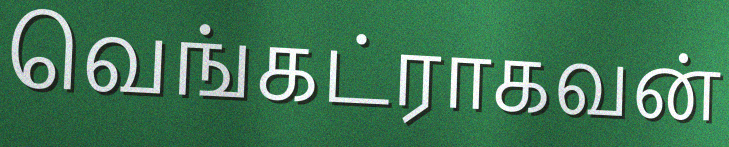
வெங்கட்ராகவன்